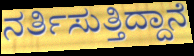
ನರ್ತಿಸುತ್ತಿದ್ದಾನೆ